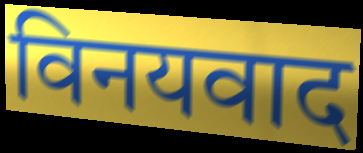
विनयवाद